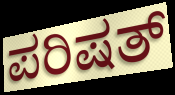
ಪರಿಷತ್